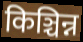
किञ्चिन्न